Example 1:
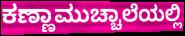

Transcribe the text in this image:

ಕಣ್ಣಾಮುಚ್ಚಾಲೆಯಲ್ಲಿ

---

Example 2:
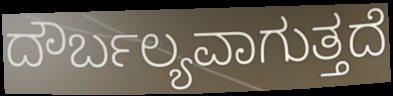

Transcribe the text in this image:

ದೌರ್ಬಲ್ಯವಾಗುತ್ತದೆ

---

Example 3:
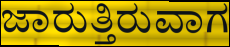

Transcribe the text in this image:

ಜಾರುತ್ತಿರುವಾಗ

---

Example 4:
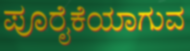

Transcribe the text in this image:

ಪೂರೈಕೆಯಾಗುವ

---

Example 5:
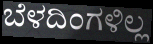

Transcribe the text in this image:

ಬೆಳದಿಂಗಳಿಲ್ಲ